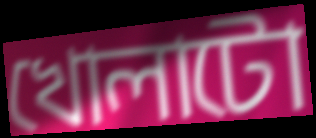
খোলাটো